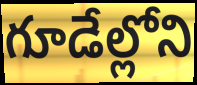
గూడేల్లోని